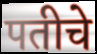
पतीचे